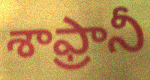
శాఫ్రానీ